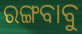
ରଙ୍ଗବାବୁ